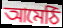
আমেঠি